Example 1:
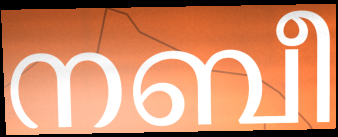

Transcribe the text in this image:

നബീ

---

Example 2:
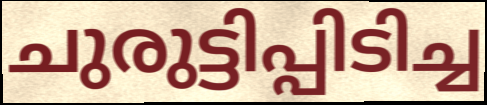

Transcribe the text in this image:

ചുരുട്ടിപ്പിടിച്ച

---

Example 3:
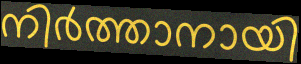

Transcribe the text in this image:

നിർത്താനായി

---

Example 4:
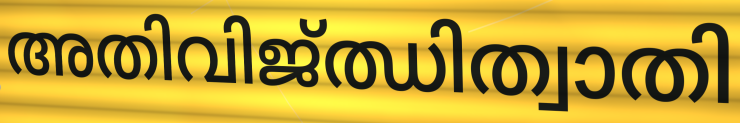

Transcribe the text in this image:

അതിവിജ്ഝിത്വാതി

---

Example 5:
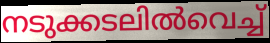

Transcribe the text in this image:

നടുക്കടലിൽവെച്ച്